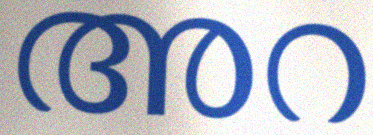
അറ